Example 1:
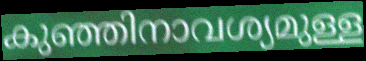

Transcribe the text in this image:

കുഞ്ഞിനാവശ്യമുള്ള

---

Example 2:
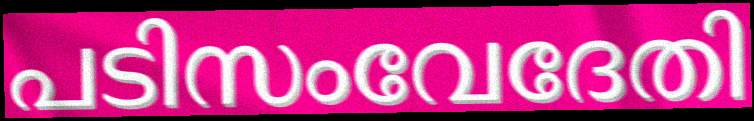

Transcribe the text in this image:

പടിസംവേദേതി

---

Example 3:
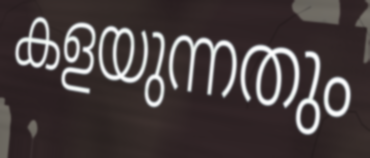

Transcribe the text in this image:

കളയുന്നതും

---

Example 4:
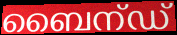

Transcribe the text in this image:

ബൈന്ഡ്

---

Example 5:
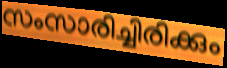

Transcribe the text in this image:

സംസാരിച്ചിരിക്കും